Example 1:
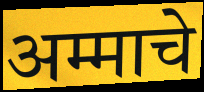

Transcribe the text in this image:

अम्माचे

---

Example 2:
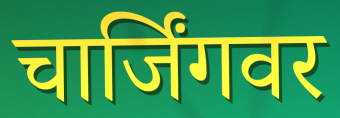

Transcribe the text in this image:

चार्जिंगवर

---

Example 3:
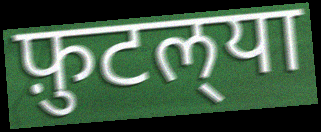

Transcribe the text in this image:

फ़ुटल्या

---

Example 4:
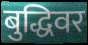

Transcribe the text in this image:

बुद्धिवर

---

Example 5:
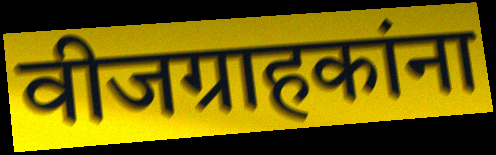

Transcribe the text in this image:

वीजग्राहकांना